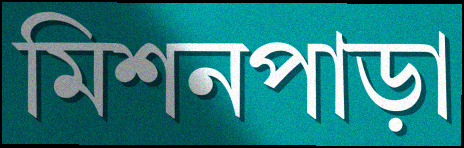
মিশনপাড়া